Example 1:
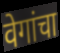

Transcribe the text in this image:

वेगांचा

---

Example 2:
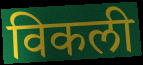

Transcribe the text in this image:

विकली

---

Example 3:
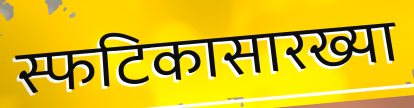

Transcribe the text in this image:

स्फटिकासारख्या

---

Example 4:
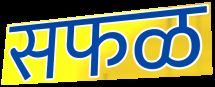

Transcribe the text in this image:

सफळ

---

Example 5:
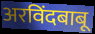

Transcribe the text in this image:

अरविंदबाबू